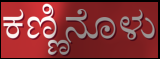
ಕಣ್ಣಿನೊಳು